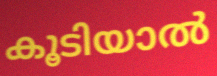
കൂടിയാൽ